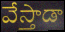
వేస్తాడా